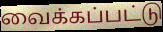
வைக்கப்பட்டு